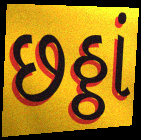
છઠ્ઠાં